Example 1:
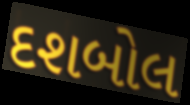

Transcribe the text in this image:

દશબોલ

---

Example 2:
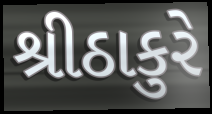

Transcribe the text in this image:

શ્રીઠાકુરે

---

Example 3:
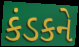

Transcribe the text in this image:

કંડકને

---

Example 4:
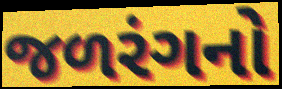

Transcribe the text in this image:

જળરંગનો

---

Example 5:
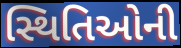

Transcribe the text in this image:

સ્થિતિઓની